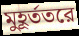
মুহূর্ততরে